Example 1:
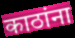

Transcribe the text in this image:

काठांना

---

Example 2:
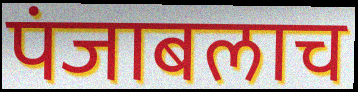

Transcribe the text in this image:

पंजाबलाच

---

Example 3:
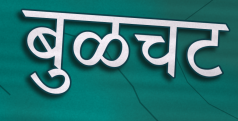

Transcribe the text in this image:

बुळचट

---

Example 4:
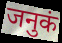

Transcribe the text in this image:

जनुकं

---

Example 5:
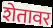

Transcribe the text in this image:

शेतावर